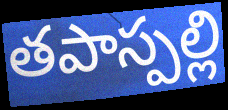
తపాస్పల్లి